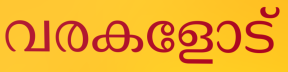
വരകളോട്